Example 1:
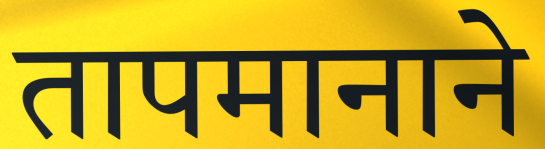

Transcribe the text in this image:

तापमानाने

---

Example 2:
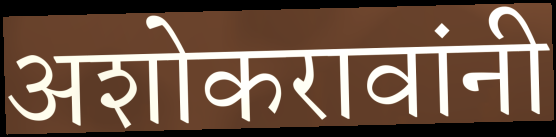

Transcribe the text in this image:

अशोकरावांनी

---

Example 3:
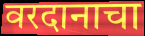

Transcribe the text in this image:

वरदानाचा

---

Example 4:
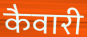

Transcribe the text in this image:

कैवारी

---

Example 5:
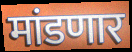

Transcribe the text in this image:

मांडणार